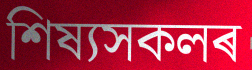
শিষ্যসকলৰ